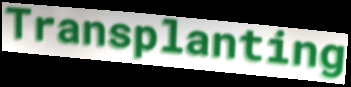
Transplanting